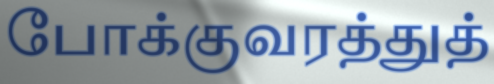
போக்குவரத்துத்